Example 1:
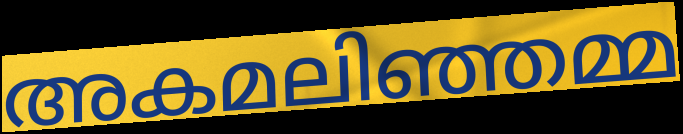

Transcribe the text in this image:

അകമലിഞ്ഞമ്മ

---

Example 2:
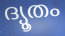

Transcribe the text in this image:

ദ്യൂതം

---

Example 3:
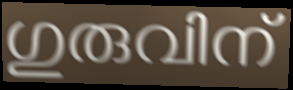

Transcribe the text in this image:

ഗുരുവിന്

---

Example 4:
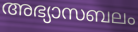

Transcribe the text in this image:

അഭ്യാസബലം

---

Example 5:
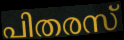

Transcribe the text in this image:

പിതരസ്